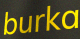
burka